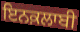
ਇਨਕ਼ਲਾਬੀ